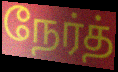
நேர்த்